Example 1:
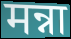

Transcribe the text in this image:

मन्ना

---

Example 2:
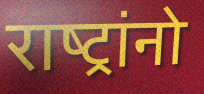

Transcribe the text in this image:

राष्ट्रांनो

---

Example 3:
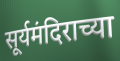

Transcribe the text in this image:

सूर्यमंदिराच्या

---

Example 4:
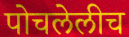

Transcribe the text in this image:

पोचलेलीच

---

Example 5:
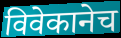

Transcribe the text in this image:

विवेकानेच